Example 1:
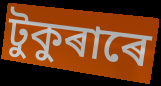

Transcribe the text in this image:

টুকুৰাৰে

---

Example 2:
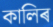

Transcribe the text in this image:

কালিৰ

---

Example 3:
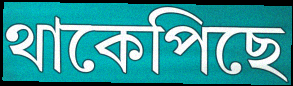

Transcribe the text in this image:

থাকেপিছে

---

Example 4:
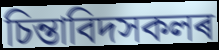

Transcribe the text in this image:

চিন্তাবিদসকলৰ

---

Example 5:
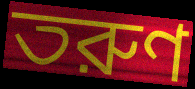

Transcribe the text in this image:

তৰুণ